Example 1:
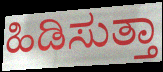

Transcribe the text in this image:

ಹಿಡಿಸುತ್ತಾ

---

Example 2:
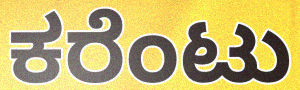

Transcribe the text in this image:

ಕರೆಂಟು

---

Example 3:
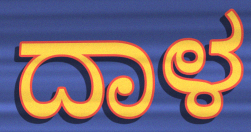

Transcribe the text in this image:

ದಾಳ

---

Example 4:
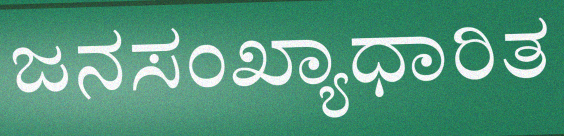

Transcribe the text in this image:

ಜನಸಂಖ್ಯಾಧಾರಿತ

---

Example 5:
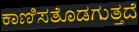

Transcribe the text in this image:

ಕಾಣಿಸತೊಡಗುತ್ತದೆ